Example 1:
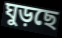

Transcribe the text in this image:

ঘুড়ছে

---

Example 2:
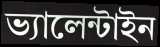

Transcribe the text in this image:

ভ্যালেন্টাইন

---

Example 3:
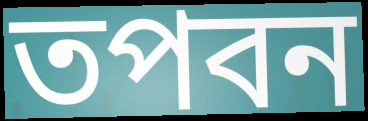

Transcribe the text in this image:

তপবন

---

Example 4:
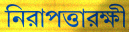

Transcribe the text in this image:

নিরাপত্তারক্ষী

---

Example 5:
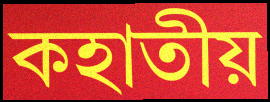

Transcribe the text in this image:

কহাতীয়